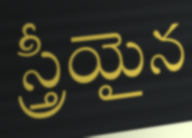
స్త్రీయైన